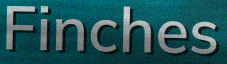
Finches